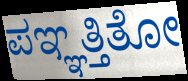
ಪಞ್ಞತ್ತಿತೋ